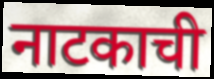
नाटकाची